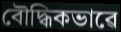
বৌদ্ধিকভাৱে